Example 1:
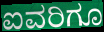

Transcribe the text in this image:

ಐವರಿಗೂ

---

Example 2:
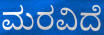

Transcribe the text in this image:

ಮರವಿದೆ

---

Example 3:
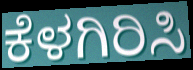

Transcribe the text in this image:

ಕೆಳಗಿರಿಸಿ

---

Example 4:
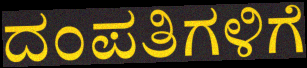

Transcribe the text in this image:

ದಂಪತಿಗಳಿಗೆ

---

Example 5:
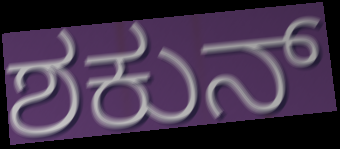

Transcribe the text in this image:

ಶಕುನ್